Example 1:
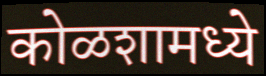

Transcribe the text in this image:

कोळशामध्ये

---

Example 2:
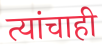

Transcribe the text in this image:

त्यांचाही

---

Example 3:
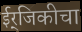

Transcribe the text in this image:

ईर्जिकीचा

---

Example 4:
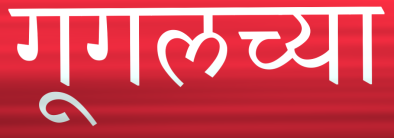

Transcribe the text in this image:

गूगलच्या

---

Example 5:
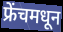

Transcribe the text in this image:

फ्रेंचमधून